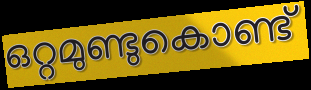
ഒറ്റമുണ്ടുകൊണ്ട്